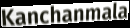
Kanchanmala